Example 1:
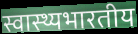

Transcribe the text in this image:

स्वास्थ्यभारतीय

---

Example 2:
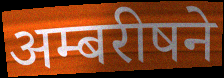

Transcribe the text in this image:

अम्बरीषने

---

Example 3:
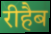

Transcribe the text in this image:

रीहैब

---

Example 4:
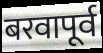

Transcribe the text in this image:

बरवापूर्व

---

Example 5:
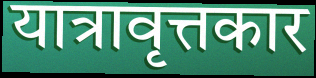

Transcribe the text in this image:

यात्रावृत्तकार